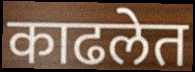
काढलेत